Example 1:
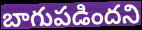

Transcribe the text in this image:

బాగుపడిందని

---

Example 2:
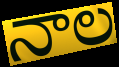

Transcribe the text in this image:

నాల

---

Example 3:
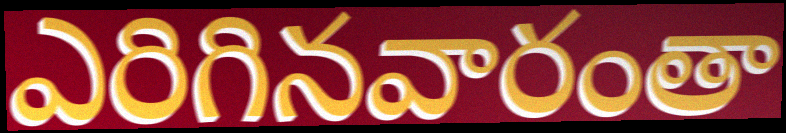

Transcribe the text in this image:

ఎరిగినవారంతా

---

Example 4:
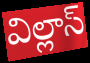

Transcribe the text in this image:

విల్లాస్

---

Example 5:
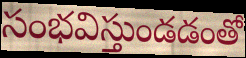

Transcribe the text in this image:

సంభవిస్తుండడంతో